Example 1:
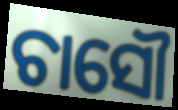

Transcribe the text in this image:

ଚାସୌ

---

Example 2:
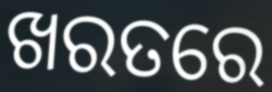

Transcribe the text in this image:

ଖରତରେ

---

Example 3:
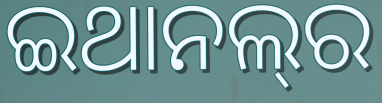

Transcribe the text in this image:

ଇଥାନଲ୍‌ର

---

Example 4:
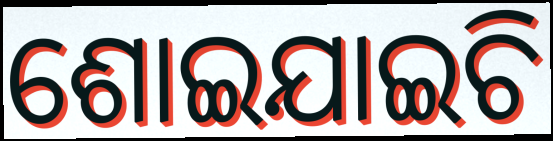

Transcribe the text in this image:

ଶୋଇଯାଇଚି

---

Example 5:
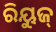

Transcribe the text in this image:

ରିୟୁଜ୍